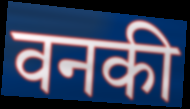
वनकी